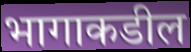
भागाकडील